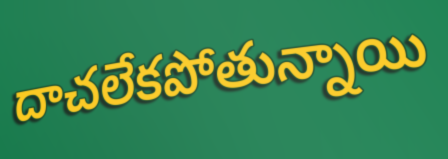
దాచలేకపోతున్నాయి